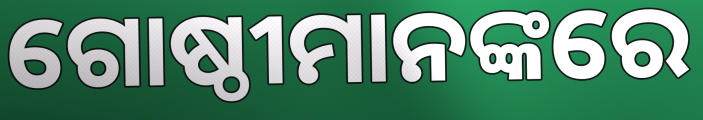
ଗୋଷ୍ଠୀମାନଙ୍କରେ